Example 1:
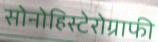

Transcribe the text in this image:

सोनोहिस्टेरोग्राफी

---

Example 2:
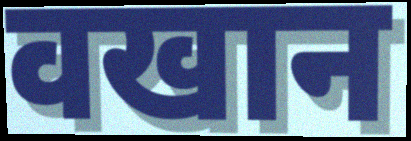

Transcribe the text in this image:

वखान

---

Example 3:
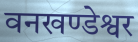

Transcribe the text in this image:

वनखण्डेश्वर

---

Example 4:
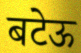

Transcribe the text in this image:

बटेऊ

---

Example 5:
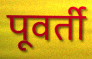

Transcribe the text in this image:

पूवर्ती